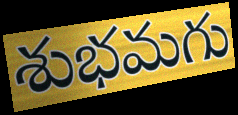
శుభమగు